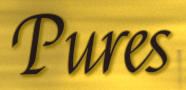
Pures